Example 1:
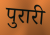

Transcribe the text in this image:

पुरारी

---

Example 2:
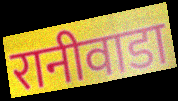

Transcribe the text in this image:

रानीवाडा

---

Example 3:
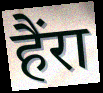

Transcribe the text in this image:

हैंरा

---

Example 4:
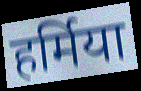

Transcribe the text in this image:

हर्मिया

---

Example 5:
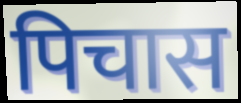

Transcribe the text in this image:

पिचास